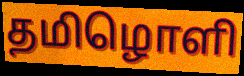
தமிழொளி